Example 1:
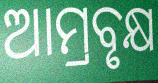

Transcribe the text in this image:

ଆମ୍ରବୃକ୍ଷ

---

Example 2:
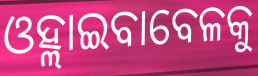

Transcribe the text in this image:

ଓହ୍ଲାଇବାବେଳକୁ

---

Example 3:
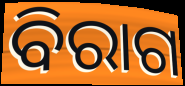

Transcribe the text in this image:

ବିରାଗ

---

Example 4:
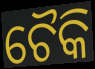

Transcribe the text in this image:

ଚୈକି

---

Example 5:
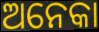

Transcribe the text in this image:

ଅନେକା